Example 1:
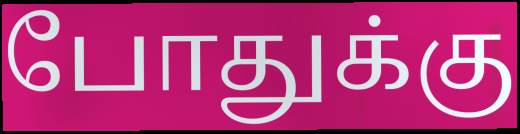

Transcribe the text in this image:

போதுக்கு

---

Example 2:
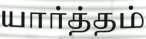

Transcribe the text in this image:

யார்த்தம்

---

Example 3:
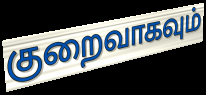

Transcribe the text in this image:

குறைவாகவும்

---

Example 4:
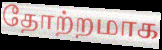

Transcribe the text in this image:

தோற்றமாக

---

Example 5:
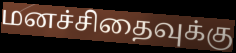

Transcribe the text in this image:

மனச்சிதைவுக்கு